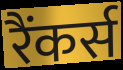
रैंकर्स